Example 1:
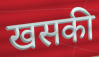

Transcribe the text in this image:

खसकी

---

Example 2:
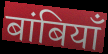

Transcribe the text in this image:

बांबियाँ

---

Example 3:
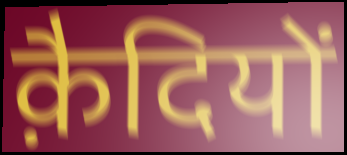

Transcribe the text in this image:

क़ैदियों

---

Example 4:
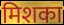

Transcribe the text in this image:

मिशका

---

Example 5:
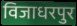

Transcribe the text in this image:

विजाधरपुर